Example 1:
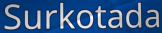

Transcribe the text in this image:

Surkotada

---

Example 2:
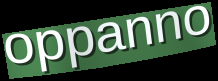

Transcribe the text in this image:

oppanno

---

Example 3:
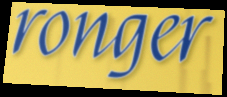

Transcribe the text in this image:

ronger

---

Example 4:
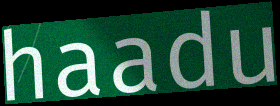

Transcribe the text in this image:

haadu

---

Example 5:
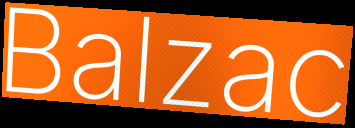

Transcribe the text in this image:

Balzac